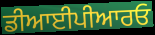
ਡੀਆਈਪੀਆਰਓ